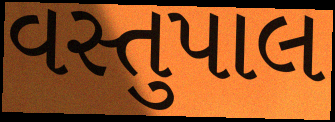
વસ્તુપાલ